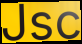
Jsc